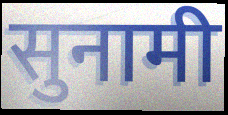
सुनामी